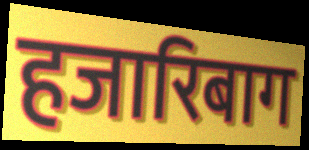
हजारिबाग